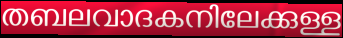
തബലവാദകനിലേക്കുള്ള